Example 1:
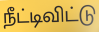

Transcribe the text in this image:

நீட்டிவிட்டு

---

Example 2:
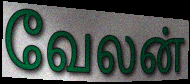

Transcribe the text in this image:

வேலன்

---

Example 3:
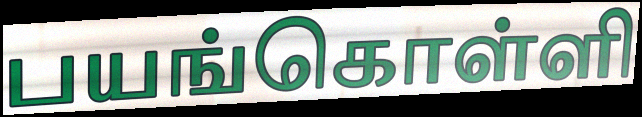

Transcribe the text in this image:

பயங்கொள்ளி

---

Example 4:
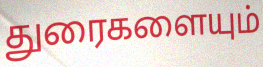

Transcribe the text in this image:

துரைகளையும்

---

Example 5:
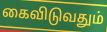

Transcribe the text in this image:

கைவிடுவதும்